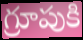
గ్రూపుకి